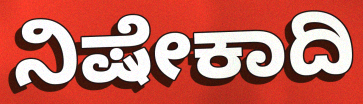
ನಿಷೇಕಾದಿ